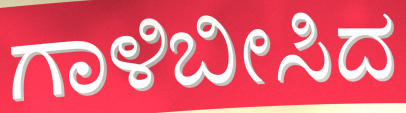
ಗಾಳಿಬೀಸಿದ